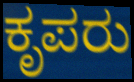
ಕೃಪರು